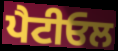
ਪੈਟੀਓਲ